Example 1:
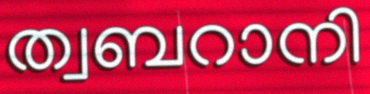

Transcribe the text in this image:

ത്വബറാനി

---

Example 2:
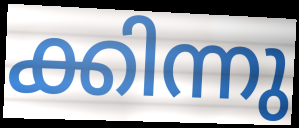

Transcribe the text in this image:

ക്കിന്നു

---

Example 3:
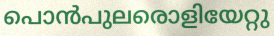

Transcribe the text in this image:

പൊൻപുലരൊളിയേറ്റു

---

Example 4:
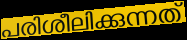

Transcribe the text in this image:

പരിശീലിക്കുന്നത്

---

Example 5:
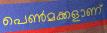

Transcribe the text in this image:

പെൺമക്കളാണ്